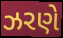
ઝરણે